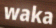
waka